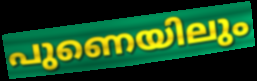
പുണെയിലും